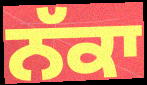
ਨੱਕਾ